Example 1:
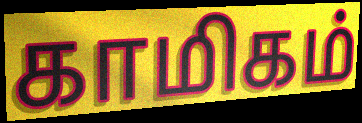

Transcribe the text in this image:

காமிகம்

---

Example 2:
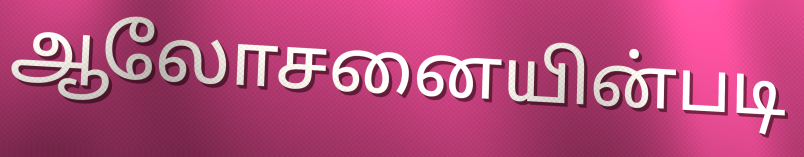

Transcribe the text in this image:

ஆலோசனையின்படி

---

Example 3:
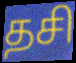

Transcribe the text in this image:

தசி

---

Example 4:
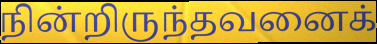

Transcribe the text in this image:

நின்றிருந்தவனைக்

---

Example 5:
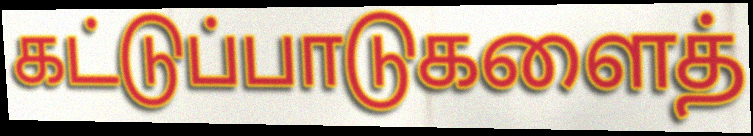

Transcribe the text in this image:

கட்டுப்பாடுகளைத்